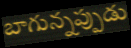
బాగున్నప్పుడు